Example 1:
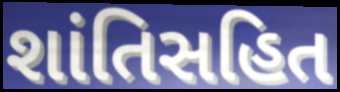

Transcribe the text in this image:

શાંતિસહિત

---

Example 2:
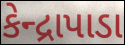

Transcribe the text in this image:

કેન્દ્રાપાડા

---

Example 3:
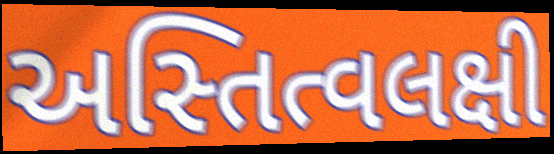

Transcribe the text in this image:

અસ્તિત્વલક્ષી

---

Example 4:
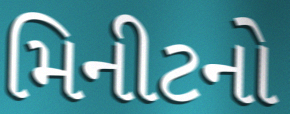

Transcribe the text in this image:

મિનીટનો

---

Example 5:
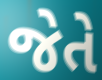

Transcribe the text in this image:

જેતે